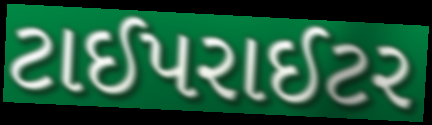
ટાઈપરાઈટર